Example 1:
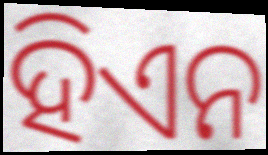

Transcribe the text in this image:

ହିଏନ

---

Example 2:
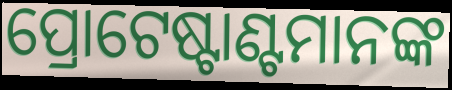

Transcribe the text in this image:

ପ୍ରୋଟେଷ୍ଟାଣ୍ଟମାନଙ୍କ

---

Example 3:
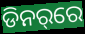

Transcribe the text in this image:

ଡିନର୍‌ରେ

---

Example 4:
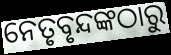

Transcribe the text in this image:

ନେତୃବୃନ୍ଦଙ୍କଠାରୁ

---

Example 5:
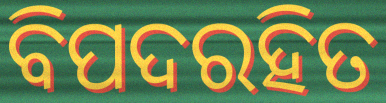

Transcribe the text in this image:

ବିପଦରହିତ